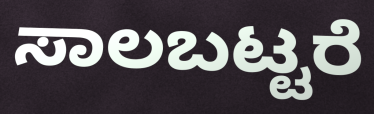
ಸಾಲಬಟ್ಟರೆ